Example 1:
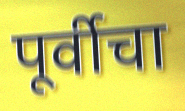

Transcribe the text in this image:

पूर्वीचा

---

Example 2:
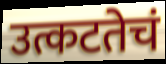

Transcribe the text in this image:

उत्कटतेचं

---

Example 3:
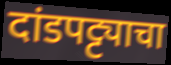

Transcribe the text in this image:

दांडपट्ट्याचा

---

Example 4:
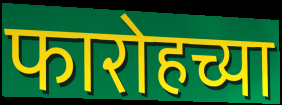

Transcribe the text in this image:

फारोहच्या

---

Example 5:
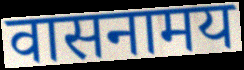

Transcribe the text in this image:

वासनामय